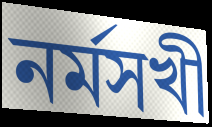
নর্মসখী